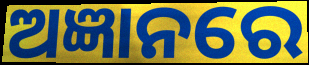
ଅଜ୍ଞାନରେ